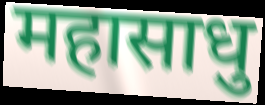
महासाधु